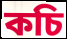
কচি